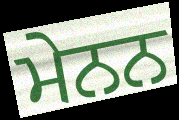
ਮੇਨਨ